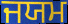
ਜਯਮ